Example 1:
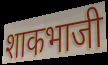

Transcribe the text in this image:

शाकभाजी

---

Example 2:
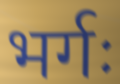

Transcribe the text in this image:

भर्गः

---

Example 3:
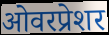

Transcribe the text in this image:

ओवरप्रेशर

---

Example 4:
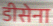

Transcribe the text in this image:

डीसेना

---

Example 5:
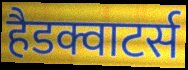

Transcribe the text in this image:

हैडक्वाटर्स